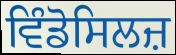
ਵਿੰਡੋਸਿਲਜ਼